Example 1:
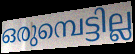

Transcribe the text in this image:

ഒരുമ്പെട്ടില്ല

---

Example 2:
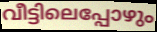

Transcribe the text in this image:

വീട്ടിലെപ്പോഴും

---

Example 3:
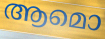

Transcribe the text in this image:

ആമൊ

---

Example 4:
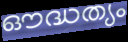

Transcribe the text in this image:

ഔദ്ധത്യം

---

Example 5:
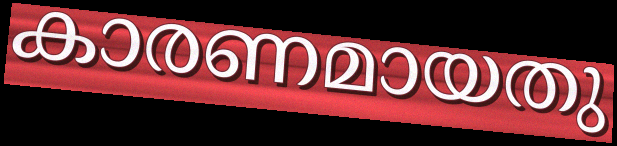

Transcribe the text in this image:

കാരണമായതു